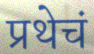
प्रथेचं